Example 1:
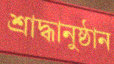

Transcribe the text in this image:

শ্রাদ্ধানুষ্ঠান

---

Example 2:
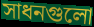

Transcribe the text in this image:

সাধনগুলো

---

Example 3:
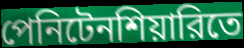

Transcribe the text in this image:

পেনিটেনশিয়ারিতে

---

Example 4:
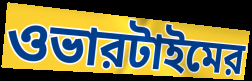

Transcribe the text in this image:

ওভারটাইমের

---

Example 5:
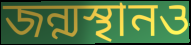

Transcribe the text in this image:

জন্মস্থানও